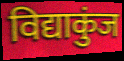
विद्याकुंज